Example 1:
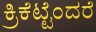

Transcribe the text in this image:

ಕ್ರಿಕೆಟ್ಟೆಂದರೆ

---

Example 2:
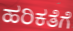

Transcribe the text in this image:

ಹರಿಕತೆಗೆ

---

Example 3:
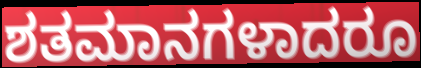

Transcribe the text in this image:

ಶತಮಾನಗಳಾದರೂ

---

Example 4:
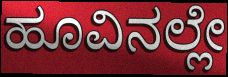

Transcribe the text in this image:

ಹೂವಿನಲ್ಲೇ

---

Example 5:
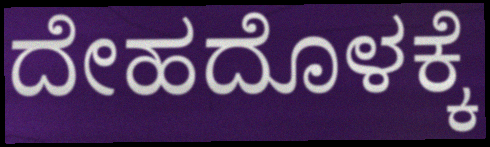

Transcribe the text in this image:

ದೇಹದೊಳಕ್ಕೆ